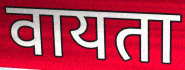
वायता